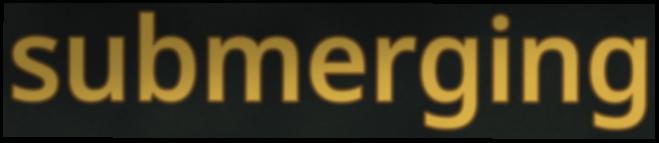
submerging